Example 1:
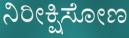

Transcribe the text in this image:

ನಿರೀಕ್ಷಿಸೋಣ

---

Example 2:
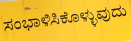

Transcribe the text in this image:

ಸಂಭಾಳಿಸಿಕೊಳ್ಳುವುದು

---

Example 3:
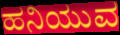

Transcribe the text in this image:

ಹನಿಯುವ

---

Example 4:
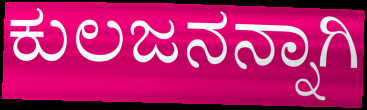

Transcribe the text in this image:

ಕುಲಜನನ್ನಾಗಿ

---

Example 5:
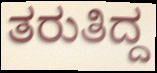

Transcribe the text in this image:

ತರುತಿದ್ದ